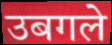
उबगले